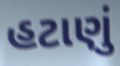
હટાણું